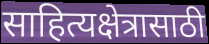
साहित्यक्षेत्रासाठी